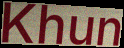
Khun